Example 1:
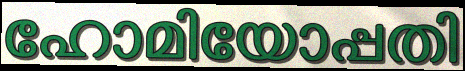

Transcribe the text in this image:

ഹോമിയോപ്പതി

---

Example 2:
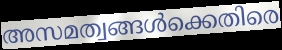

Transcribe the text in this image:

അസമത്വങ്ങൾക്കെതിരെ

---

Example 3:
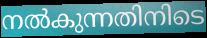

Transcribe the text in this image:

നൽകുന്നതിനിടെ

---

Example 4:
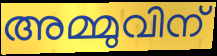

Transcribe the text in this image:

അമ്മുവിന്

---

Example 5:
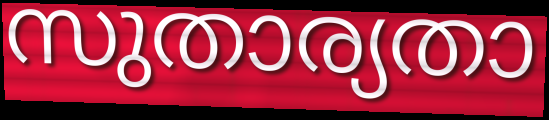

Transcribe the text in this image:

സുതാര്യതാ